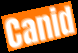
Canid